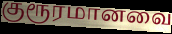
குரூரமானவை